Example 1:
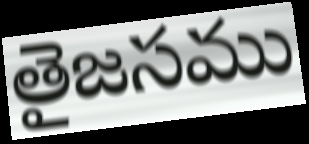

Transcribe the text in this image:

తైజసము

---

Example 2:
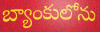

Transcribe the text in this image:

బ్యాంకులోను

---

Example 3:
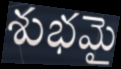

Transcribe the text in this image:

శుభమై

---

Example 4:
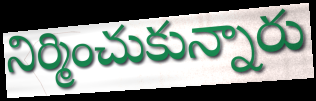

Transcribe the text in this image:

నిర్మించుకున్నారు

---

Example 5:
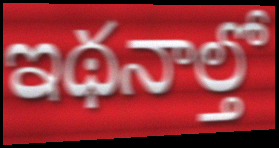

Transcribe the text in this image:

ఇథనాల్తో